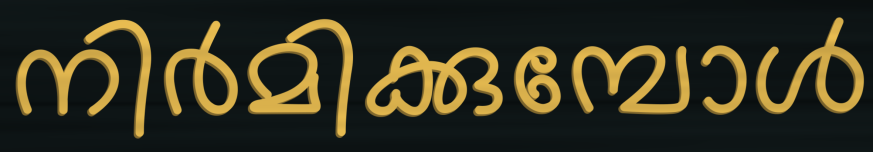
നിർമിക്കുമ്പോൾ